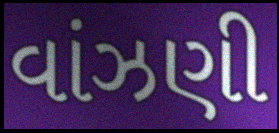
વાંઝણી